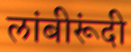
लांबीरूंदी